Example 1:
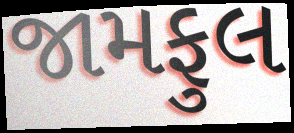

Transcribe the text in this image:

જામફુલ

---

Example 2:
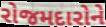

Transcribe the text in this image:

રોજમદારોને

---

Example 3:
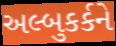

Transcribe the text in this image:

અલ્બુકર્કને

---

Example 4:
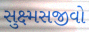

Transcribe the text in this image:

સુક્ષ્મસજીવો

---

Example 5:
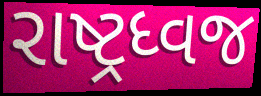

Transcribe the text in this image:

રાષ્ટ્રધ્વજ